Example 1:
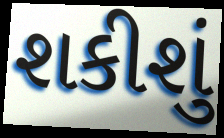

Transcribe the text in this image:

શકીશું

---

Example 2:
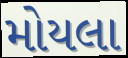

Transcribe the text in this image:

મોયલા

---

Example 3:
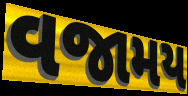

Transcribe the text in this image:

વજામય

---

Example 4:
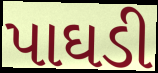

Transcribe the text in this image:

પાઘડી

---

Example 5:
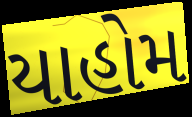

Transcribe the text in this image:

યાહોમ